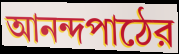
আনন্দপাঠের